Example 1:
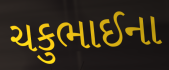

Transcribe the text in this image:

ચકુભાઈના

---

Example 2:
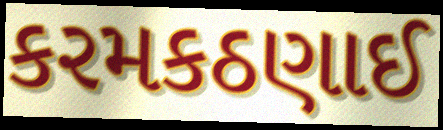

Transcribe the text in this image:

કરમકઠણાઈ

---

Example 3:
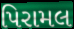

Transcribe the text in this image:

પિરામલ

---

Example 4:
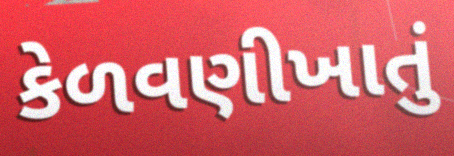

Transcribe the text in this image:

કેળવણીખાતું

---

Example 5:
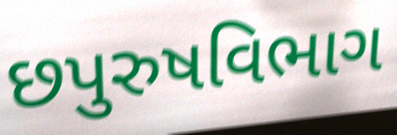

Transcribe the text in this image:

છપુરુષવિભાગ